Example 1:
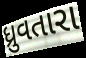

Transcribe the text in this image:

ધ્રુવતારા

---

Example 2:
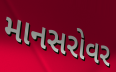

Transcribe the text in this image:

માનસરોવર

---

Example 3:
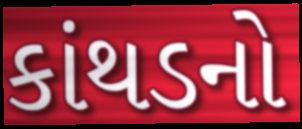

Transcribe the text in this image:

કાંથડનો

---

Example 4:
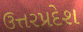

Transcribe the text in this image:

ઉત્તરપ્રદેશ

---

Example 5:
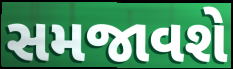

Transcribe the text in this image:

સમજાવશે